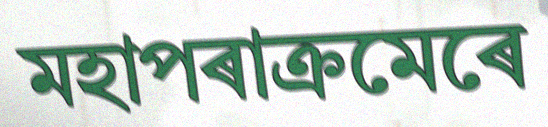
মহাপৰাক্ৰমেৰে